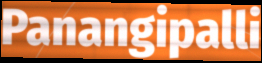
Panangipalli